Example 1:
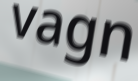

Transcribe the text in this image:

vagn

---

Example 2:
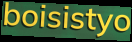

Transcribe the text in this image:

boisistyo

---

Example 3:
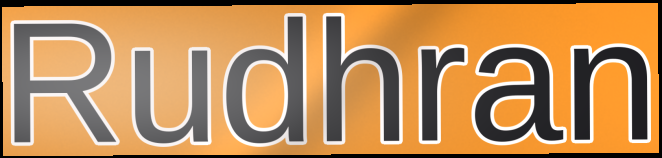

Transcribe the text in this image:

Rudhran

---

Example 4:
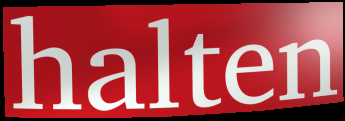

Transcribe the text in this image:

halten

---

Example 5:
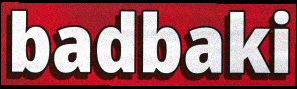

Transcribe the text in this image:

badbaki